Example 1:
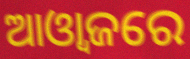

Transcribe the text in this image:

ଆଓ୍ୱାଜରେ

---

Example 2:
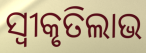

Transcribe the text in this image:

ସ୍ଵୀକୃତିଲାଭ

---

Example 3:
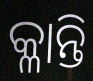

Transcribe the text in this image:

କ୍ଳାନ୍ତି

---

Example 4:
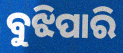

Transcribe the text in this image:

ବୁଝିପାରି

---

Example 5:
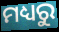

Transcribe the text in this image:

ମଧ୍ୟରୁ